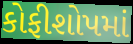
કોફીશોપમાં